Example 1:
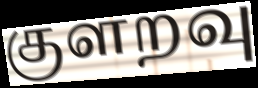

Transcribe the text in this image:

குளறவு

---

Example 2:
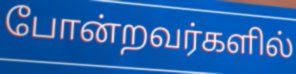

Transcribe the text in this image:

போன்றவர்களில்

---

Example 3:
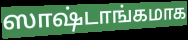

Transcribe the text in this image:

ஸாஷ்டாங்கமாக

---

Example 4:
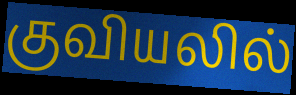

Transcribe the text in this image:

குவியலில்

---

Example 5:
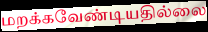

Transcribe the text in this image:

மறக்கவேண்டியதில்லை